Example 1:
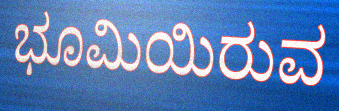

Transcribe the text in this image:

ಭೂಮಿಯಿರುವ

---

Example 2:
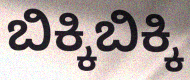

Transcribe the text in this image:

ಬಿಕ್ಕಿಬಿಕ್ಕಿ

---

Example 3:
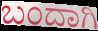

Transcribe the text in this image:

ಬಂದಾಗಿ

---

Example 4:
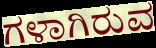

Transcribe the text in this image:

ಗಳಾಗಿರುವ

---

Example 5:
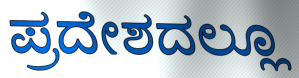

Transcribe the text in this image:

ಪ್ರದೇಶದಲ್ಲೂ